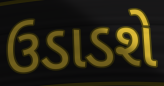
ઉડાડશે